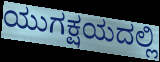
ಯುಗಕ್ಷಯದಲ್ಲಿ